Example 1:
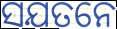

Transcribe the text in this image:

ସଯତନେ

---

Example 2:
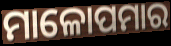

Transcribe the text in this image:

ମାଳୋପମାର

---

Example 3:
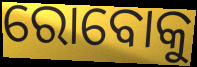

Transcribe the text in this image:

ରୋବୋକୁ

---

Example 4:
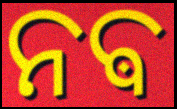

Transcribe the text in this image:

ନଵ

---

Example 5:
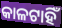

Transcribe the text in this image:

କାଳଟାହିଁ